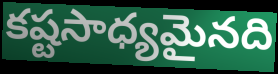
కష్టసాధ్యమైనది